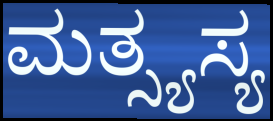
ಮತ್ಸ್ಯಸ್ಯ